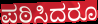
ಪಠಿಸಿದರೂ